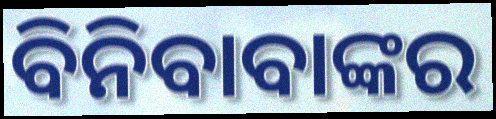
ବିନିବାବାଙ୍କର